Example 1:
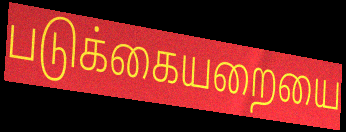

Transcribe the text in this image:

படுக்கையறையை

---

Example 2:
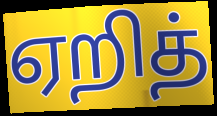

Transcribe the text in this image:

ஏறித்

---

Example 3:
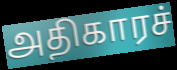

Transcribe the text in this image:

அதிகாரச்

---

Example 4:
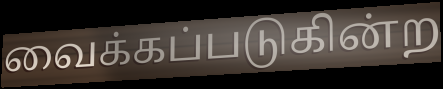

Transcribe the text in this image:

வைக்கப்படுகின்ற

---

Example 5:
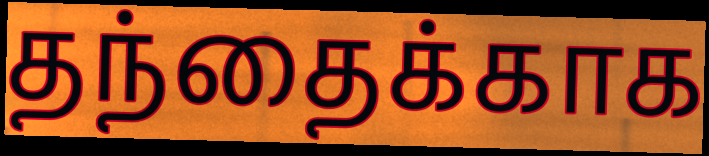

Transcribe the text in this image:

தந்தைக்காக